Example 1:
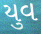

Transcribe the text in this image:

યુવ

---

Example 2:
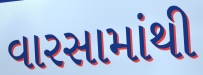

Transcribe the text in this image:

વારસામાંથી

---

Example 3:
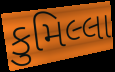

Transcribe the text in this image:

કુમિલ્લા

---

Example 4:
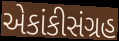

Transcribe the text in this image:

એકાંકીસંગ્રહ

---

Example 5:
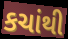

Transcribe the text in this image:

કચાંથી